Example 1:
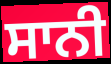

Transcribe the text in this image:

ਸਾਨੀ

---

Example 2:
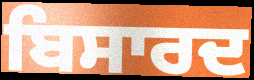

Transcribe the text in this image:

ਬਿਸਾਰਦ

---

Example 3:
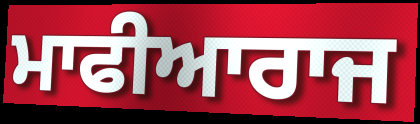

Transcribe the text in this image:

ਮਾਫੀਆਰਾਜ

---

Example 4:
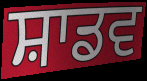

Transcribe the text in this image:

ਸ਼ਾਡਵ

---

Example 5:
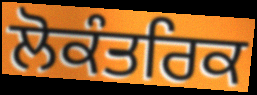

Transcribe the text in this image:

ਲੋਕੰਤਰਿਕ